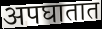
अपघातात